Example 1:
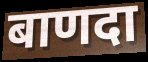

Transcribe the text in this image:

बाणदा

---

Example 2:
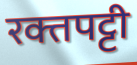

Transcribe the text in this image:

रक्तपट्टी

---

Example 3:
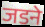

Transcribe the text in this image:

जडने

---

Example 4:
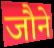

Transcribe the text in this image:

जौने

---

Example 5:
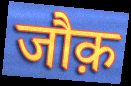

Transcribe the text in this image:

जौक़